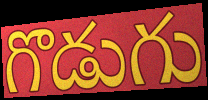
గొడుగు